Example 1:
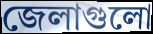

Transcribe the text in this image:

জেলাগুলো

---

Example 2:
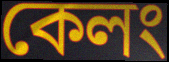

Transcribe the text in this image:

কেলং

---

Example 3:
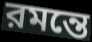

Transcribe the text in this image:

রমন্তে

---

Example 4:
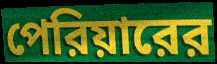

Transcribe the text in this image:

পেরিয়ারের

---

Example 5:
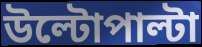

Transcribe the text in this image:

উল্টোপাল্টা